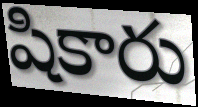
షికారు